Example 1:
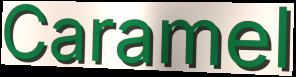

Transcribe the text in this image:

Caramel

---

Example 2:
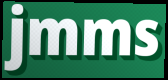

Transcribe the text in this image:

jmms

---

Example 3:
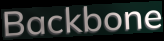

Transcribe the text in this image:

Backbone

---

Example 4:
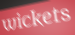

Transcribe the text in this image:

wickets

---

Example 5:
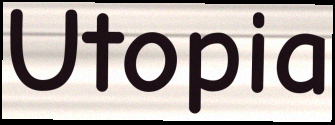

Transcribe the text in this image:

Utopia